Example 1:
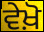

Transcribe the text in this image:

ਵੇਖ਼ੋ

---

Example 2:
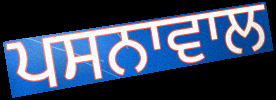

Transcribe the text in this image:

ਪਸਨਾਵਾਲ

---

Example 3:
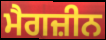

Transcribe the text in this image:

ਮੈਗਜ਼ੀਨ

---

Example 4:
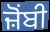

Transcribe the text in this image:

ਜ਼ੋਂਬੀ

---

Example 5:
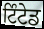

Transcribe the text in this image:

ਟਿੰਟੇਡ